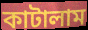
কাটালাম